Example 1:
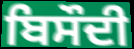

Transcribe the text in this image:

ਬਿਸੌਦੀ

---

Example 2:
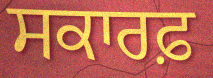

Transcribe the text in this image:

ਸਕਾਰਫ਼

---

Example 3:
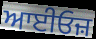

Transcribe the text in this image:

ਆਈਓਜ਼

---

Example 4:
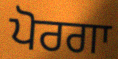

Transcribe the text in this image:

ਪੋਰਗਾ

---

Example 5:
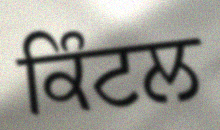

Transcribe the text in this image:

ਕਿੰਟਲ